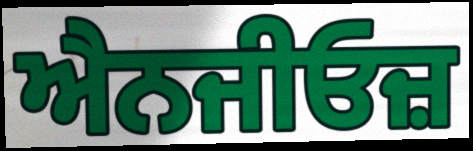
ਐਨਜੀਓਜ਼